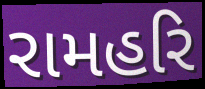
રામહરિ